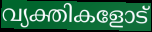
വ്യക്തികളോട്